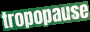
tropopause